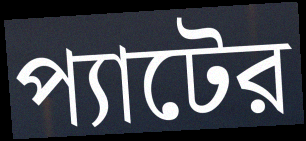
প্যাটের